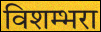
विशम्भरा